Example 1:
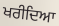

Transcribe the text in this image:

ਖਰੀਦਿਆ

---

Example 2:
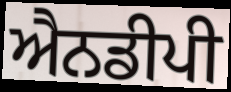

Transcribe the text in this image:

ਐਨਡੀਪੀ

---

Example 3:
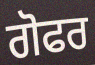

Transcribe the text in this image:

ਗੋਫਰ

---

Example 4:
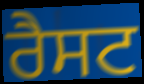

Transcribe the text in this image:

ਰੈਸਟ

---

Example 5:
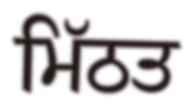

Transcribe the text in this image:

ਮਿੱਠਤ